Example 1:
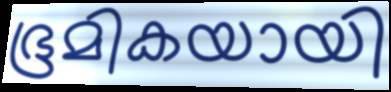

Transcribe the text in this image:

ഭൂമികയായി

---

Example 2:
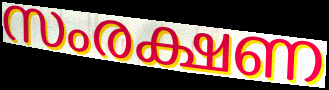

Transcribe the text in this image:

സംരക്ഷണ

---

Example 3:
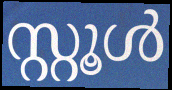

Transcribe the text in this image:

സ്റ്റൂൾ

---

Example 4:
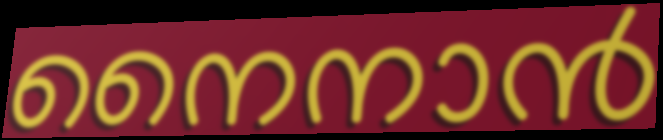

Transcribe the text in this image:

നൈനാൻ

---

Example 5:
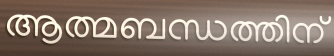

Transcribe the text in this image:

ആത്മബന്ധത്തിന്